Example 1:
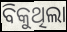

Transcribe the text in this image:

ବିକୁଥିଲା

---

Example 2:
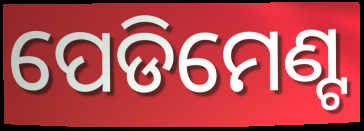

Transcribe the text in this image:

ପେଡିମେଣ୍ଟ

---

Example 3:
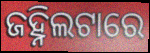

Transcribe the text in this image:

ଜହ୍ନିଲଟାରେ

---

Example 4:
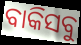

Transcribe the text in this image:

ବାକିସବୁ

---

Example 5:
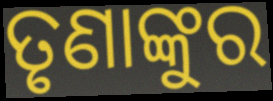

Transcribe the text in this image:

ତୃଣାଙ୍କୁର